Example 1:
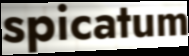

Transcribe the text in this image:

spicatum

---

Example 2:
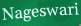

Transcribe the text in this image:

Nageswari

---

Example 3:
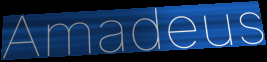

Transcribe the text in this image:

Amadeus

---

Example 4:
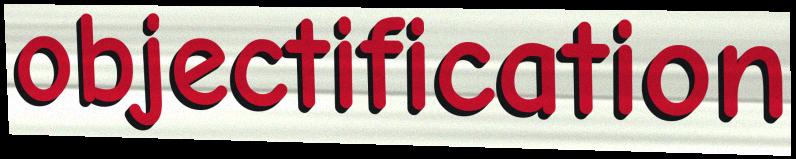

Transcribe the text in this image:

objectification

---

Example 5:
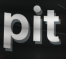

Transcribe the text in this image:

pit